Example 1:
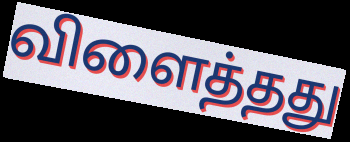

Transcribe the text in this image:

விளைத்தது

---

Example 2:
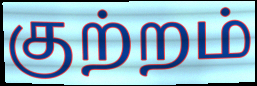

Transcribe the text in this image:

குற்றம்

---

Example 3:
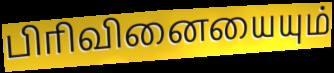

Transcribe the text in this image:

பிரிவினையையும்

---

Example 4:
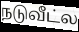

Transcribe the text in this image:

நடுவீட்ல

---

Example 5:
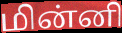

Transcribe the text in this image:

மின்னி